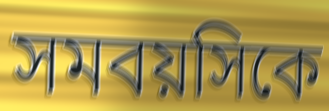
সমবয়সিকে